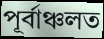
পূৰ্বাঞ্চলত